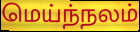
மெய்ந்நலம்